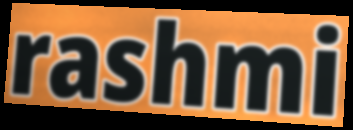
rashmi